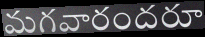
మగవారందరూ